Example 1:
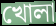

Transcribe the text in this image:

খোলা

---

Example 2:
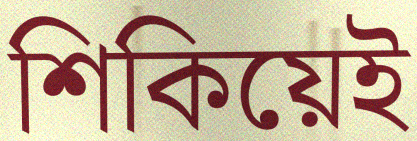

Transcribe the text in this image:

শিকিয়েই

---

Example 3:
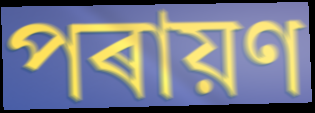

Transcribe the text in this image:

পৰায়ণ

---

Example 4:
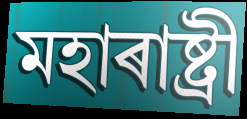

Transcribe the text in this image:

মহাৰাষ্ট্ৰী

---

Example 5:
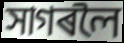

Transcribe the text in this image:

সাগৰলৈ